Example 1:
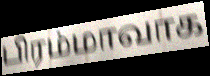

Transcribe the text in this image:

பிரம்மாவாக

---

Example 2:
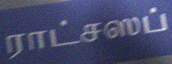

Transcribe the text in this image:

ராட்சஸப்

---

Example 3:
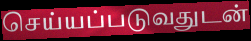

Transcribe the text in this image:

செய்யப்படுவதுடன்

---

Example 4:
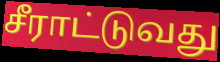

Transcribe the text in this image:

சீராட்டுவது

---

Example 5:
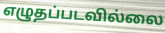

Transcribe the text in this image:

எழுதப்படவில்லை